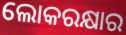
ଲୋକରକ୍ଷାର